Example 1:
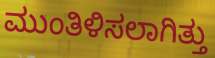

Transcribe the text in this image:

ಮುಂತಿಳಿಸಲಾಗಿತ್ತು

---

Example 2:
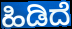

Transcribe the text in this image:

ಹಿಡಿದೆ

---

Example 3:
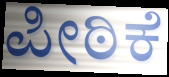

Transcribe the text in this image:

ಪೀಠಿಕೆ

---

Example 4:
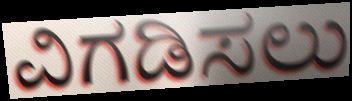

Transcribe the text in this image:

ವಿಗಡಿಸಲು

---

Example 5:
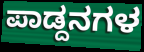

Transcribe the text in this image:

ಪಾಡ್ದನಗಳ